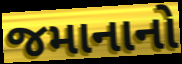
જમાનાનો